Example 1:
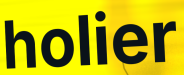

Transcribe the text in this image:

holier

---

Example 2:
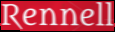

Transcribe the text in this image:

Rennell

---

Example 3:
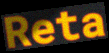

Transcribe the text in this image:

Reta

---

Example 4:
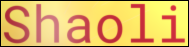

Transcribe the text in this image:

Shaoli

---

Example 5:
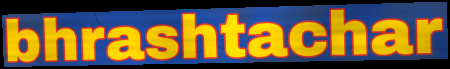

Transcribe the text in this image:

bhrashtachar